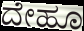
ದೇಹೂ